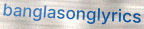
banglasonglyrics